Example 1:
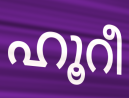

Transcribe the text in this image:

ഹൂറീ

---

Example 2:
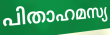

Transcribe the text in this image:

പിതാഹമസ്യ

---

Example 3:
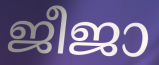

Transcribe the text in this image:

ജീജാ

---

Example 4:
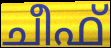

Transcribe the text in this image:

ചീഫ്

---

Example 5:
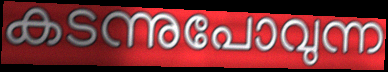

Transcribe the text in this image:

കടന്നുപോവുന്ന